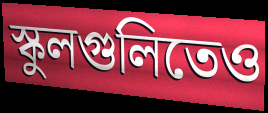
স্কুলগুলিতেও